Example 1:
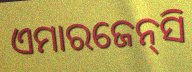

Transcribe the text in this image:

ଏମାରଜେନ୍‌ସି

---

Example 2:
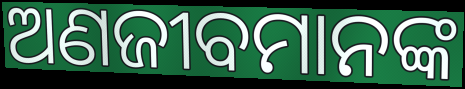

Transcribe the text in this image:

ଅଣଜୀବମାନଙ୍କ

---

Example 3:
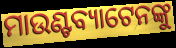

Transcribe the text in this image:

ମାଉଣ୍ଟବ୍ୟାଟେନଙ୍କୁ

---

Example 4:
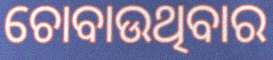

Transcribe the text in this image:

ଚୋବାଉଥିବାର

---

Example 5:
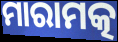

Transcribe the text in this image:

ମାରାମତ୍କ